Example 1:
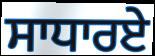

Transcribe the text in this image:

ਸਾਧਾਰਏ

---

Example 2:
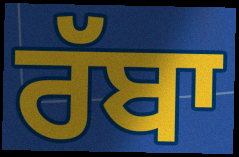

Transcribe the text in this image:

ਰੱਬਾ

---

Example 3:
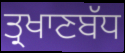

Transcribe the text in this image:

ਤ੍ਰਖਾਣਬੱਧ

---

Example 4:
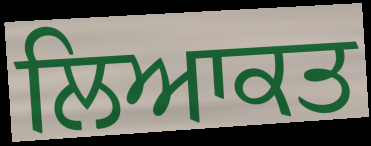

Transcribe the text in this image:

ਲਿਆਕਤ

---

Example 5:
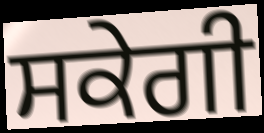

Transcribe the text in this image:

ਸਕੇਗੀ